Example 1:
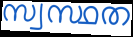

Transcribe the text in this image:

സ്വസ്ഥത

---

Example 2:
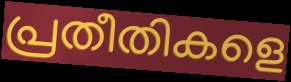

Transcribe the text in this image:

പ്രതീതികളെ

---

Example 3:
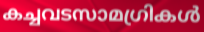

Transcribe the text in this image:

കച്ചവടസാമഗ്രികൾ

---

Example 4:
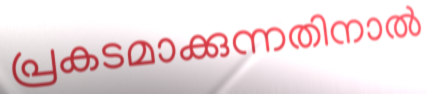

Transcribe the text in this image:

പ്രകടമാക്കുന്നതിനാൽ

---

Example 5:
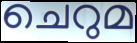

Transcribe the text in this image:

ചെറുമ